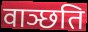
वाञ्छति